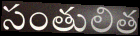
సంతులిత